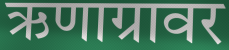
ऋणाग्रावर